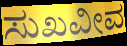
ಸುಖವೀವ